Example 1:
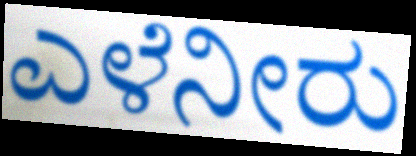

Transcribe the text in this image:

ಎಳೆನೀರು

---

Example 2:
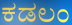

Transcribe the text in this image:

ಕಡಲಂ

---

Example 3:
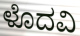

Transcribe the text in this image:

ಳೊದವಿ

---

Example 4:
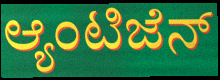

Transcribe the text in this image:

ಆ್ಯಂಟಿಜೆನ್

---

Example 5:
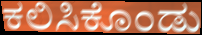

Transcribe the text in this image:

ಕಲಿಸಿಕೊಂಡು